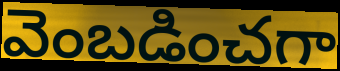
వెంబడించగా